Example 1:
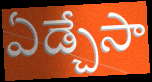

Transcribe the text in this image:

ఏడ్చేసా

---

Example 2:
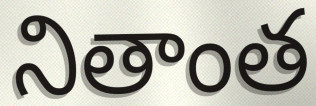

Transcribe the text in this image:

నితాంత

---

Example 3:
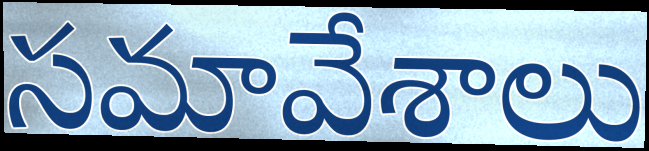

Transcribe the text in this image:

సమావేశాలు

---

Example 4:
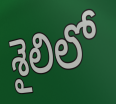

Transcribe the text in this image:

శైలిలో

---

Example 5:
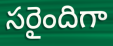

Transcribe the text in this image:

సరైందిగా